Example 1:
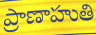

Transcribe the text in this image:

ప్రాణాహుతి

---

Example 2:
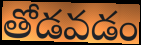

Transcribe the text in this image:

తోడవడం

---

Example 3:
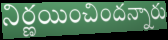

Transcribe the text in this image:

నిర్ణయించిందన్నారు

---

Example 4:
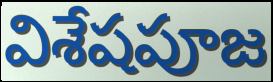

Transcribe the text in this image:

విశేషపూజ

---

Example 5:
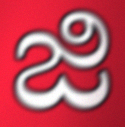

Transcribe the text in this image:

జి